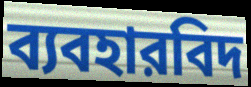
ব্যবহারবিদ